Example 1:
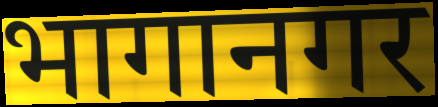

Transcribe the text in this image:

भागानगर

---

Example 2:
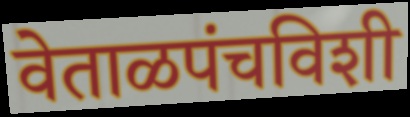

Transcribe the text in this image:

वेताळपंचविशी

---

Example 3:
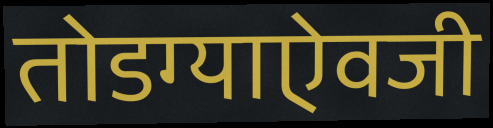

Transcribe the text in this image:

तोडग्याऐवजी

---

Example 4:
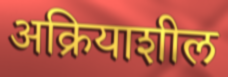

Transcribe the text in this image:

अक्रियाशील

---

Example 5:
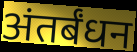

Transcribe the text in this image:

अंतर्बंधन